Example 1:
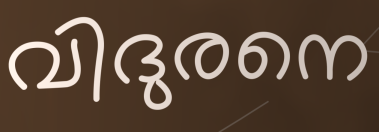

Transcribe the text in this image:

വിദുരനെ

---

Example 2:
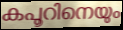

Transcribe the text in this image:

കപൂറിനെയും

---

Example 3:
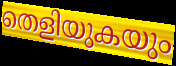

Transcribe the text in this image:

തെളിയുകയും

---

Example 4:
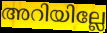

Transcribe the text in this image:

അറിയില്ലേ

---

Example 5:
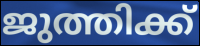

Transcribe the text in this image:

ജുത്തിക്ക്